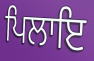
ਪਿਲਾਇ